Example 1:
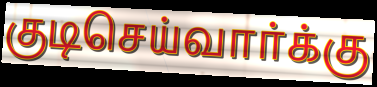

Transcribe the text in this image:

குடிசெய்வார்க்கு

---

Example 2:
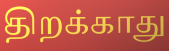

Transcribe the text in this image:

திறக்காது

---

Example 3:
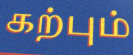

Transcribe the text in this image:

கற்பும்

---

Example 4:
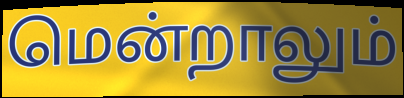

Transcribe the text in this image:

மென்றாலும்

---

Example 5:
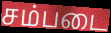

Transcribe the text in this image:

சம்படை